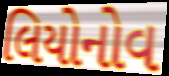
લિયોનોવ